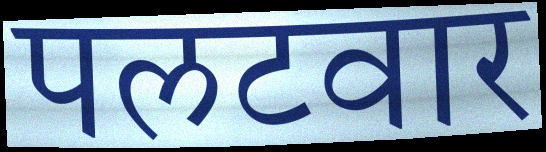
पलटवार